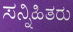
ಸನ್ನಿಹಿತರು